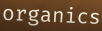
organics